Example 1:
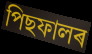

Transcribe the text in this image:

পিছফালৰ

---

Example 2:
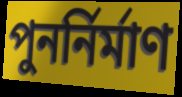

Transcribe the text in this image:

পুনৰ্নিৰ্মাণ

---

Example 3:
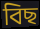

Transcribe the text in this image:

বিছ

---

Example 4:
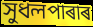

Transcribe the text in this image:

সুধলপাৰাৰ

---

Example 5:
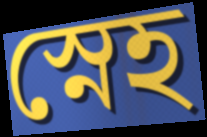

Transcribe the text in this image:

স্নেহ